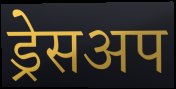
ड्रेसअप